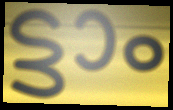
ട്ടാം